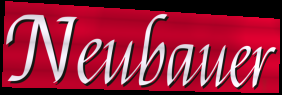
Neubauer